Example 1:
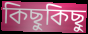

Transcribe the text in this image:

কিছুকিছু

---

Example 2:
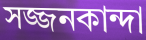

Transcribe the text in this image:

সজ্জনকান্দা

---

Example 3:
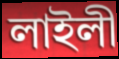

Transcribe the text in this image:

লাইলী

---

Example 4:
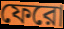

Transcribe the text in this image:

ফেরো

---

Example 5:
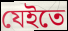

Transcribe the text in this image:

যেইতে